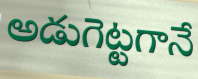
అడుగెట్టగానే